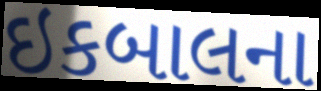
ઇકબાલના